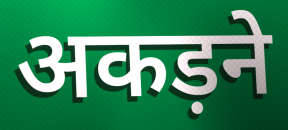
अकड़ने